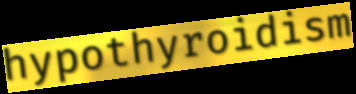
hypothyroidism